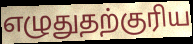
எழுதுதற்குரிய